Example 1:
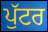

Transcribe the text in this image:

ਪੁੱਟਰ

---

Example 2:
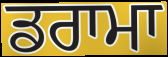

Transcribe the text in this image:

ਡਰਾਮਾ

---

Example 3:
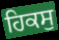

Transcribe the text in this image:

ਹਿਕਸੁ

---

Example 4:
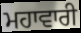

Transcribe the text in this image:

ਮਹਾਵਾਰੀ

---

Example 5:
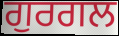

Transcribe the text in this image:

ਗੁਰਗਲ